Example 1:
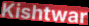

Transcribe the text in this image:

Kishtwar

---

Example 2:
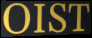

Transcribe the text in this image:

OIST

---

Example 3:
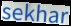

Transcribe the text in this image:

sekhar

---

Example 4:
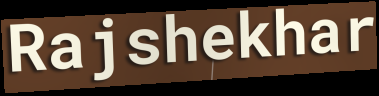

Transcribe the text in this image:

Rajshekhar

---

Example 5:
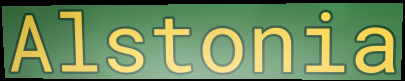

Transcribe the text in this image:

Alstonia